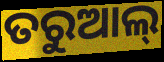
ତରୁଆଲ୍